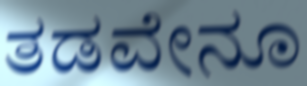
ತಡವೇನೂ